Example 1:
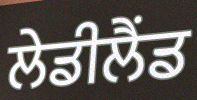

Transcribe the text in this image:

ਲੇਡੀਲੈਂਡ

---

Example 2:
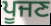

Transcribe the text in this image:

ਪੂਜਣ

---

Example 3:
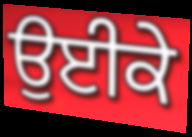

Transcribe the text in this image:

ਉਈਕੇ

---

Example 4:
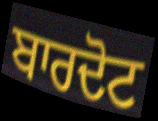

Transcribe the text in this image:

ਬਾਰਦੋਟ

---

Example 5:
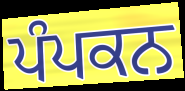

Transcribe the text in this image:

ਪੰਪਕਨ